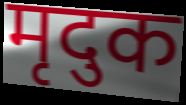
मृदुक